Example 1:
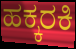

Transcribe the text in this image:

ಹಕ್ಕರಕಿ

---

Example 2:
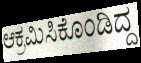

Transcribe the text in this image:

ಆಕ್ರಮಿಸಿಕೊಂಡಿದ್ದ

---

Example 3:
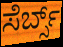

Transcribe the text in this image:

ಸೆರ್ಬ್ಸ್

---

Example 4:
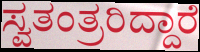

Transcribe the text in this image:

ಸ್ವತಂತ್ರರಿದ್ದಾರೆ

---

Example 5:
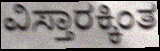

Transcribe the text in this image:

ವಿಸ್ತಾರಕ್ಕಿಂತ